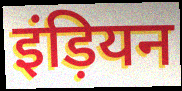
इंड़ियन